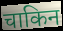
चाकिन